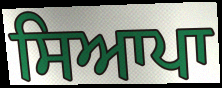
ਸਿਆਪਾ